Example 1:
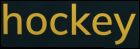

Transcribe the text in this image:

hockey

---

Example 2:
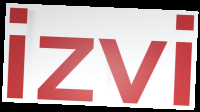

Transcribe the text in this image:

izvi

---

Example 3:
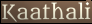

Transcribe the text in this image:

Kaathali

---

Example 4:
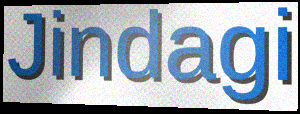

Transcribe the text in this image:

Jindagi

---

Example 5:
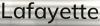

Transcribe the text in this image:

Lafayette